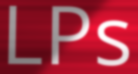
LPs